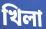
খিলা